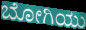
ಬೋಗಿಯು